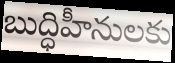
బుద్ధిహీనులకు